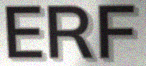
ERF